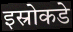
इस्रोकडे